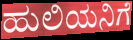
ಹುಲಿಯನಿಗೆ